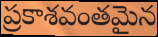
ప్రకాశవంతమైన